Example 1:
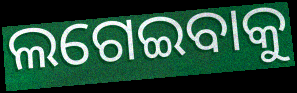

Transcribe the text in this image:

ଲଗେଇବାକୁ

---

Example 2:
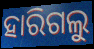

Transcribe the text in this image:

ହାରିଗଲୁ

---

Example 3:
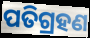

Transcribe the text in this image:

ପତିଗ୍ରହଣ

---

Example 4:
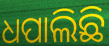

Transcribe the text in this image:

ଧପାଲିଛି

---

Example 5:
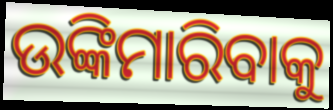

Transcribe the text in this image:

ଉଙ୍କିମାରିବାକୁ